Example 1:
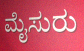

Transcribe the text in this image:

ಮೈಸುರು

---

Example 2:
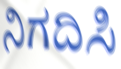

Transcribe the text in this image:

ನಿಗದಿಸಿ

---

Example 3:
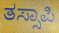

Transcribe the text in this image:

ತಸ್ಸಾಪಿ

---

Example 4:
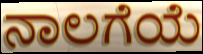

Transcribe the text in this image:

ನಾಲಗೆಯೆ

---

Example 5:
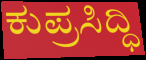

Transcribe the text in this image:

ಕುಪ್ರಸಿದ್ಧಿ